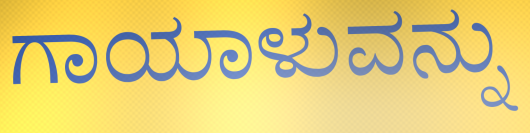
ಗಾಯಾಳುವನ್ನು